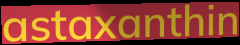
astaxanthin